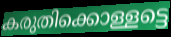
കരുതിക്കൊള്ളട്ടെ